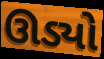
ઊડ્યો